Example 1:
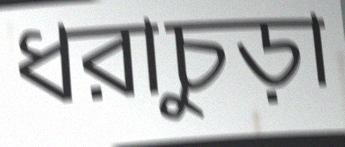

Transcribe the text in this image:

ধরাচুড়া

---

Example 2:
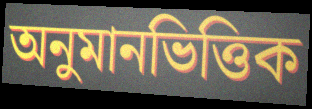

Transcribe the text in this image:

অনুমানভিত্তিক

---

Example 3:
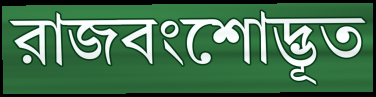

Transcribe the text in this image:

রাজবংশোদ্ভূত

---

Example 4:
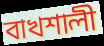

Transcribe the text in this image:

বাখশালী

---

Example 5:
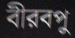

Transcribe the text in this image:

বীরবপু